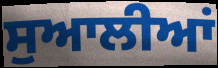
ਸੁਆਲੀਆਂ